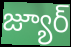
జ్యూర్